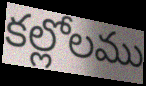
కల్లోలము